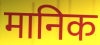
मानिक